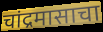
चांद्रमासाचा